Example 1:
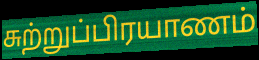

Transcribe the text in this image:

சுற்றுப்பிரயாணம்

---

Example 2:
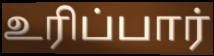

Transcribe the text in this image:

உரிப்பார்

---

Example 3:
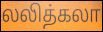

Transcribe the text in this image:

லலித்கலா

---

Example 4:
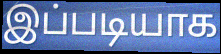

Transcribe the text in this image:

இப்படியாக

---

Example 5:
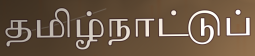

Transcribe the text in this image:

தமிழ்நாட்டுப்